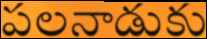
పలనాడుకు